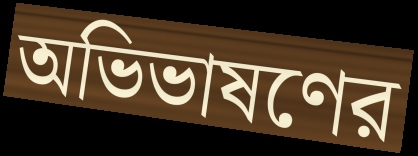
অভিভাষণের